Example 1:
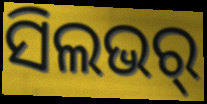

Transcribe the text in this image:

ସିଲଭର୍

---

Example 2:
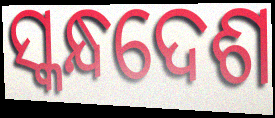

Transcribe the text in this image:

ସ୍କନ୍ଧଦେଶ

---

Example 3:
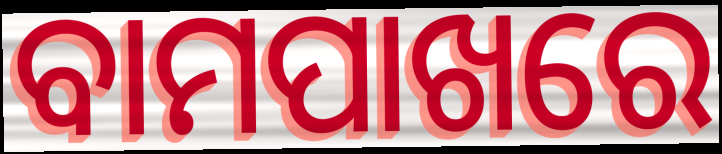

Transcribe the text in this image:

ବାମପାଖରେ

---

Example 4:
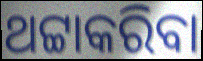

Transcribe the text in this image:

ଥଟ୍ଟାକରିବା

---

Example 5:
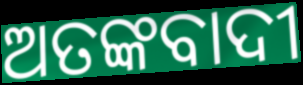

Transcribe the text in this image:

ଅତଙ୍କବାଦୀ